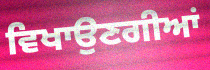
ਵਿਖਾਉਣਗੀਆਂ